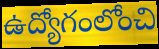
ఉద్యోగంలోంచి